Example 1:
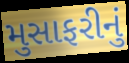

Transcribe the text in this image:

મુસાફરીનું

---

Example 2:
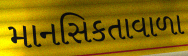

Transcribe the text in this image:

માનસિકતાવાળા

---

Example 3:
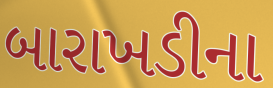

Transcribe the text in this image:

બારાખડીના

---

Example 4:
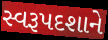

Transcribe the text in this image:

સ્વરૂપદશાને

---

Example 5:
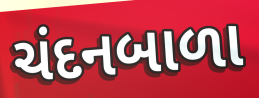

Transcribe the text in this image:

ચંદનબાળા